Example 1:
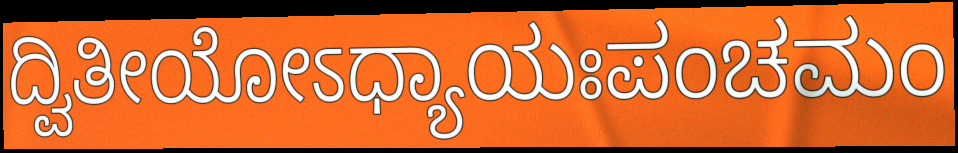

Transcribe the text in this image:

ದ್ವಿತೀಯೋಽಧ್ಯಾಯಃಪಂಚಮಂ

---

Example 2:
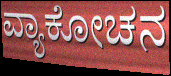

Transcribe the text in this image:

ವ್ಯಾಕೋಚನ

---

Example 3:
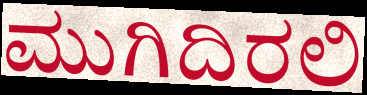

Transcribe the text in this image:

ಮುಗಿದಿರಲಿ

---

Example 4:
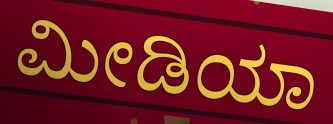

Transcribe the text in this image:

ಮೀಡಿಯಾ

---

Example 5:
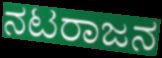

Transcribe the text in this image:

ನಟರಾಜನ